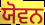
ਯੋਵਨ